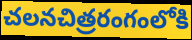
చలనచిత్రరంగంలోకి